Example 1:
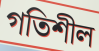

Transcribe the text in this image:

গতিশীল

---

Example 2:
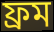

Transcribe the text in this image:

ফ্ৰম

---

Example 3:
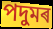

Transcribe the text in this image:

পদুমৰ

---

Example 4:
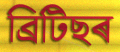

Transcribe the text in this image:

ব্ৰিটিছৰ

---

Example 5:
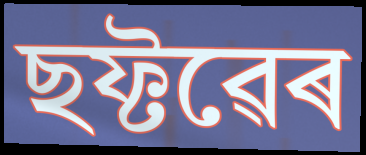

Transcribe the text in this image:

ছফ্টৱেৰ